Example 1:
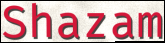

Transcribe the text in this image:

Shazam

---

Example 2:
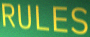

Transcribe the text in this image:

RULES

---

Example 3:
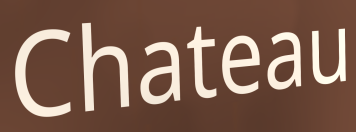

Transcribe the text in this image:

Chateau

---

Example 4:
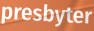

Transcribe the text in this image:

presbyter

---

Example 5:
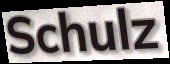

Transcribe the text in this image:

Schulz